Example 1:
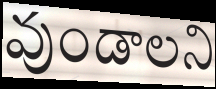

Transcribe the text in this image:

వుండాలని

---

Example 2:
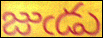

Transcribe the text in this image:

జుఁడు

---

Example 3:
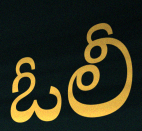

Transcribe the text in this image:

ఓలీ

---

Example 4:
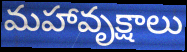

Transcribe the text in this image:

మహావృక్షాలు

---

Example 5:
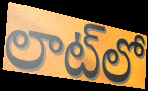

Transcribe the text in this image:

లాట్‌లో